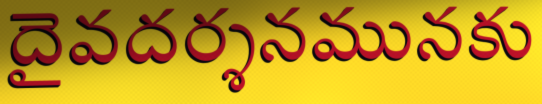
దైవదర్శనమునకు